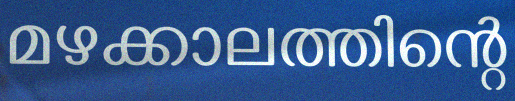
മഴക്കാലത്തിന്റെ